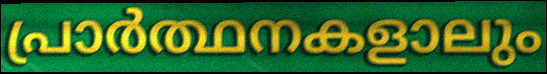
പ്രാർത്ഥനകളാലും